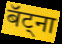
बॅट्ना